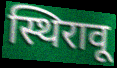
स्थिरावू